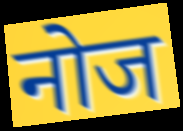
नोज